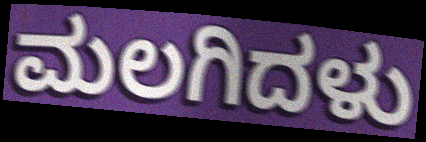
ಮಲಗಿದಳು